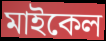
মাইকেল